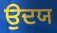
ਉਦਯ